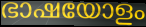
ഭാഷയോളം